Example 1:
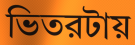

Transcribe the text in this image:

ভিতরটায়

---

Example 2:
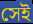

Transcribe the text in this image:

সেই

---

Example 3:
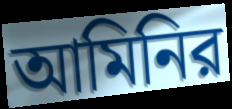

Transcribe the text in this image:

আমিনির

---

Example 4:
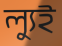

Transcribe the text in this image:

ল্যুই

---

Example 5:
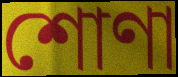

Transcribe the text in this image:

শোণা